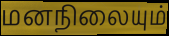
மனநிலையும்